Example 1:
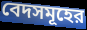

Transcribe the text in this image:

বেদসমূহের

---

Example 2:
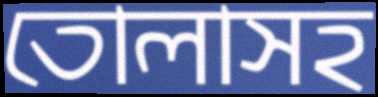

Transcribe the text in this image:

তোলাসহ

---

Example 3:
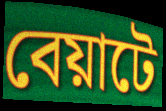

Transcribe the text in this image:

বেয়াটে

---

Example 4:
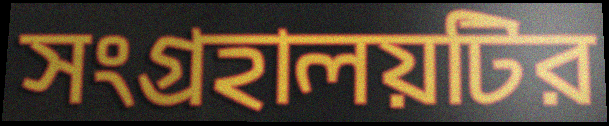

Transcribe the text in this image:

সংগ্রহালয়টির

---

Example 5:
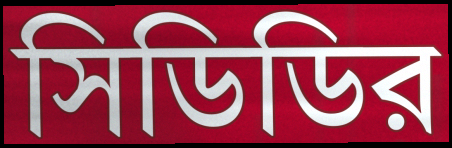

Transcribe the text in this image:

সিডিডির